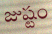
జుష్టం